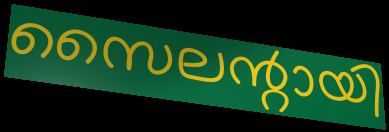
സൈലന്റായി